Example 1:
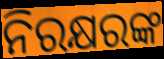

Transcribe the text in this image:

ନିରକ୍ଷରଙ୍କ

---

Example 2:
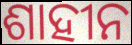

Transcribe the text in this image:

ଶାହୀନ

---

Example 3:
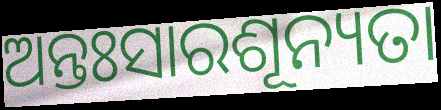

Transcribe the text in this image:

ଅନ୍ତଃସାରଶୂନ୍ୟତା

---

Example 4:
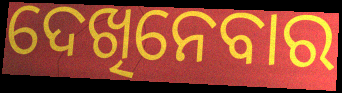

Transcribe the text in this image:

ଦେଖିନେବାର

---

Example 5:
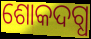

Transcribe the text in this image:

ଶୋକଦଗ୍ଧ